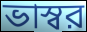
ভাস্বর